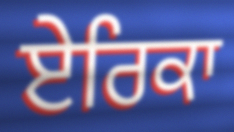
ਏਰਿਕਾ